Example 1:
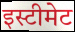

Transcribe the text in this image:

इस्टीमेट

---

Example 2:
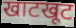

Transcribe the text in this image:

खाटखूट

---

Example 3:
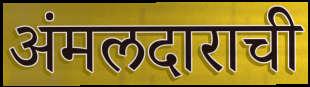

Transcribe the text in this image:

अंमलदाराची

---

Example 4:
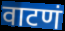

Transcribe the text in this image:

वाटणं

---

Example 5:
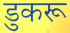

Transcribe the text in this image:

डुकरू